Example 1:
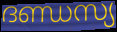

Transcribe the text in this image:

ദണ്ഡസ്യ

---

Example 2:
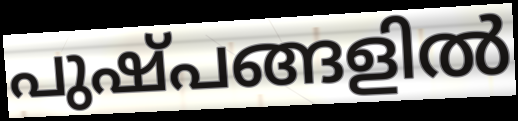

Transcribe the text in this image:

പുഷ്പങ്ങളിൽ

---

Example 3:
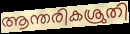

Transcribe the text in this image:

ആന്തരികശ്രുതി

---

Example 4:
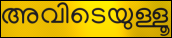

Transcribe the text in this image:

അവിടെയുള്ളൂ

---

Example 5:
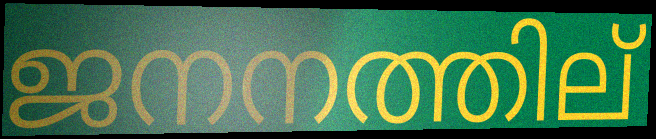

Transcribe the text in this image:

ജനനത്തില്